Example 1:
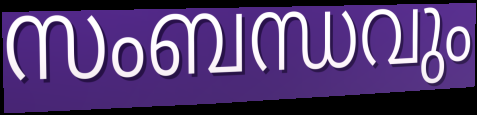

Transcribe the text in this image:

സംബന്ധവും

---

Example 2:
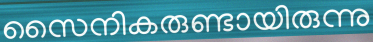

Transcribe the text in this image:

സൈനികരുണ്ടായിരുന്നു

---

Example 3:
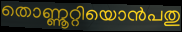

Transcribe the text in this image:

തൊണ്ണൂറ്റിയൊൻപതു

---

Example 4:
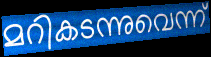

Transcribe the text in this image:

മറികടന്നുവെന്ന്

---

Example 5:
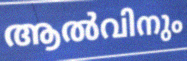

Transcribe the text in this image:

ആൽവിനും